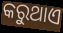
କରୁଥାଏ